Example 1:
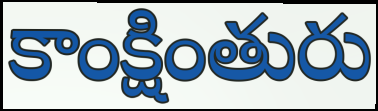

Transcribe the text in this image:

కాంక్షింతురు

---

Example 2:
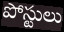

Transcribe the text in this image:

పోస్టులు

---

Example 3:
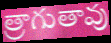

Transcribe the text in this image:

త్రాగుతావు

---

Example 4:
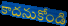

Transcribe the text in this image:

కాదనుకోండి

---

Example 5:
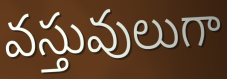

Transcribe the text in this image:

వస్తువులుగా